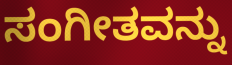
ಸಂಗೀತವನ್ನು